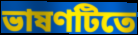
ভাষণটিতে